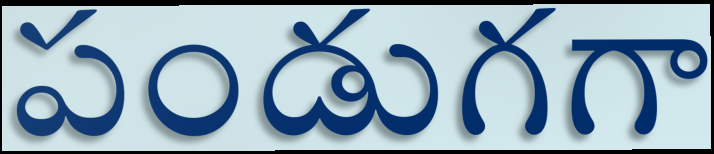
పండుగగా